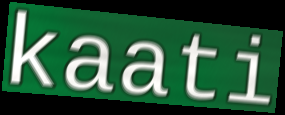
kaati